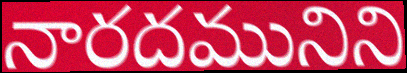
నారదమునిని